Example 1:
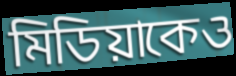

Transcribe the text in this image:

মিডিয়াকেও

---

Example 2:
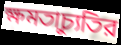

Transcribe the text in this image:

ক্ষমতাচ্যুতির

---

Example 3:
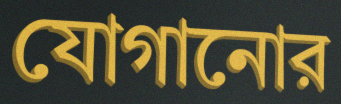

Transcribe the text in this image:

যোগানোর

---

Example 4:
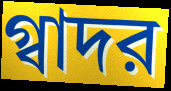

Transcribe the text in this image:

গ্বাদর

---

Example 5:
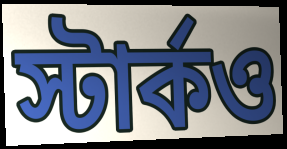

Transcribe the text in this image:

স্টার্কও